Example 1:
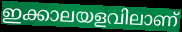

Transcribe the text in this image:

ഇക്കാലയളവിലാണ്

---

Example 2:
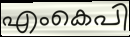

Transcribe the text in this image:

എംകെപി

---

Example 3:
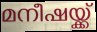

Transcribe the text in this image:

മനീഷയ്ക്ക്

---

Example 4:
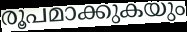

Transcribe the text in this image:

രൂപമാക്കുകയും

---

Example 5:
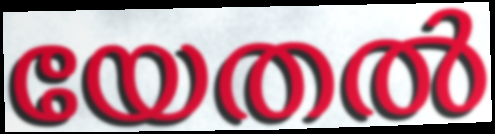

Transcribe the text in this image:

യേതൽ